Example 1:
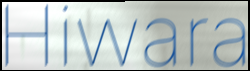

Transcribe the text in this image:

Hiwara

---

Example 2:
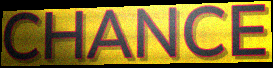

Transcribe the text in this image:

CHANCE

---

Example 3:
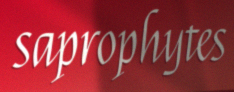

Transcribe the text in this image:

saprophytes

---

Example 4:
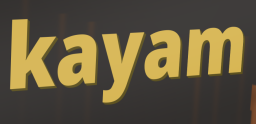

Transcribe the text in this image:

kayam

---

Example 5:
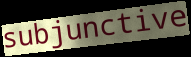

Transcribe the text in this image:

subjunctive